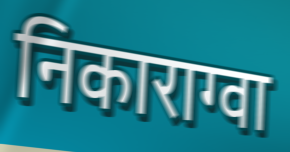
निकाराग्वा